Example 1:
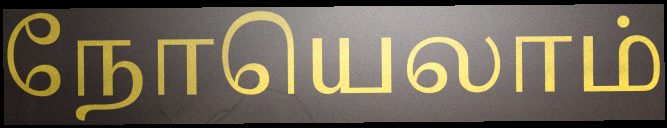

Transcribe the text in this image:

நோயெலாம்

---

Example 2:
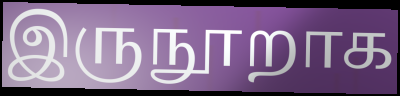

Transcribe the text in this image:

இருநூறாக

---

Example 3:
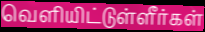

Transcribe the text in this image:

வெளியிட்டுள்ளீர்கள்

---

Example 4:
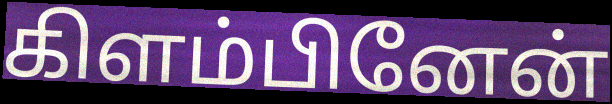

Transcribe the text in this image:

கிளம்பினேன்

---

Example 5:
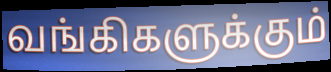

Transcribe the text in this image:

வங்கிகளுக்கும்